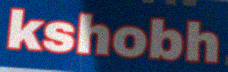
kshobh